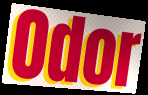
Odor